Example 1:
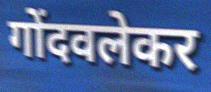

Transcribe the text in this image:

गोंदवलेकर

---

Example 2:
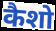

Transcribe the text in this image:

कैशो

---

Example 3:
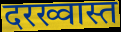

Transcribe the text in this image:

दरख्वास्त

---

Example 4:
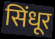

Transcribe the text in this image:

सिंधूर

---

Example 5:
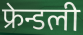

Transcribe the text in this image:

फ्रेन्डली